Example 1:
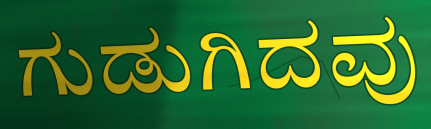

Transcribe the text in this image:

ಗುಡುಗಿದವು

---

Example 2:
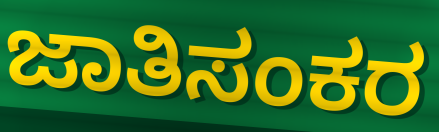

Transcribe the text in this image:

ಜಾತಿಸಂಕರ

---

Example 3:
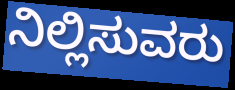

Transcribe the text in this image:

ನಿಲ್ಲಿಸುವರು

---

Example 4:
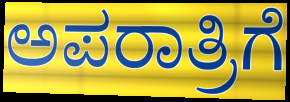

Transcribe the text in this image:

ಅಪರಾತ್ರಿಗೆ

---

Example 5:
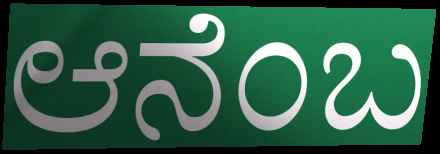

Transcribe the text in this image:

ಆನೆಂಬ